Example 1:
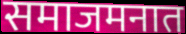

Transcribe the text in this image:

समाजमनात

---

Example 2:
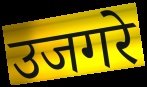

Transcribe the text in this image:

उजगरे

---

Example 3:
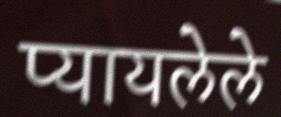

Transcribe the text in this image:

प्यायलेले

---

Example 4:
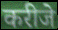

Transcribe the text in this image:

करीजे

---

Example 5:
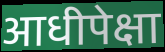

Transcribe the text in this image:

आधीपेक्षा